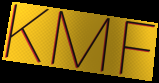
KMF